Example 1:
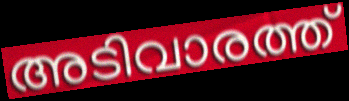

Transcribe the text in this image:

അടിവാരത്ത്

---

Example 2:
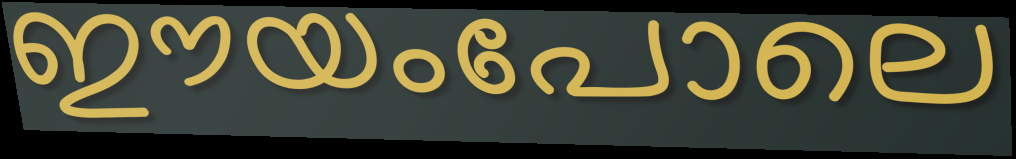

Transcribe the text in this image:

ഈയംപോലെ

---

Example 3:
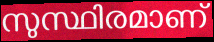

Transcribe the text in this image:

സുസ്ഥിരമാണ്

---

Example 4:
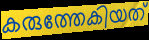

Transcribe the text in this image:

കരുത്തേകിയത്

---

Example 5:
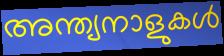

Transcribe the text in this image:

അന്ത്യനാളുകൾ